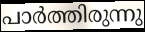
പാർത്തിരുന്നു